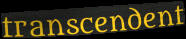
transcendent